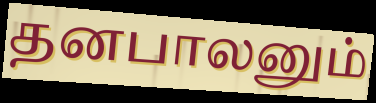
தனபாலனும்